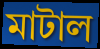
মাটাল